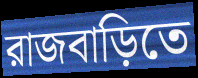
রাজবাড়িতে